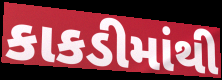
કાકડીમાંથી